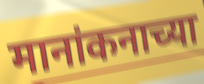
मानांकनाच्या